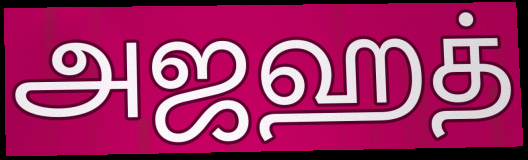
அஜஹத்